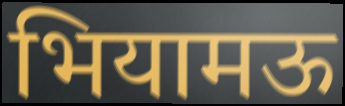
भियामऊ